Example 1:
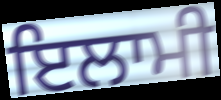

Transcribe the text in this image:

ਇਲਾਮੀ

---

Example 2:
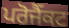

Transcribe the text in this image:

ਪਰੋਜੈੱਕਟ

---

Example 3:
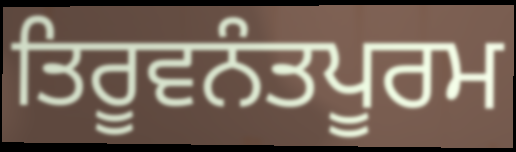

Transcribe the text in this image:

ਤਿਰੂਵਨੰਤਪੂਰਮ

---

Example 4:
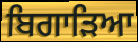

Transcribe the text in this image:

ਬਿਗਾੜਿਆ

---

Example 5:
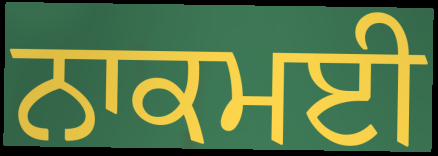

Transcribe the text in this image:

ਨਾਕਮਈ